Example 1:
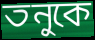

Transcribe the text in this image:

তনুকে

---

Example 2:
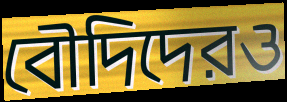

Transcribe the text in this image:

বৌদিদেরও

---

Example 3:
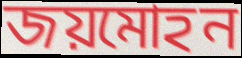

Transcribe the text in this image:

জয়মোহন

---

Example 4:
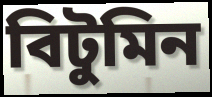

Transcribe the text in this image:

বিটুমিন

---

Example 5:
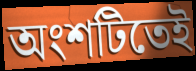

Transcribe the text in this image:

অংশটিতেই